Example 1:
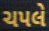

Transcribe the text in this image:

ચપલે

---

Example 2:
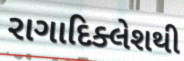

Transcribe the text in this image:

રાગાદિક્લેશથી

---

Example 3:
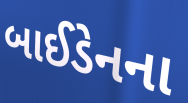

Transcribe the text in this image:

બાઈડેનના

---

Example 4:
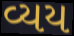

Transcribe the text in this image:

વ્યય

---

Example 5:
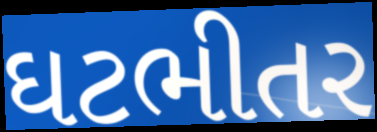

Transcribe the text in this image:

ઘટભીતર